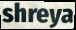
shreya